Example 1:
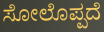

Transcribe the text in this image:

ಸೋಲೊಪ್ಪದೆ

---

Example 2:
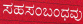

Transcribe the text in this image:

ಸಹಸಂಬಂಧವು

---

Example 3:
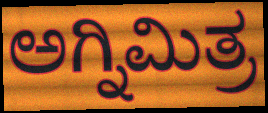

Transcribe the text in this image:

ಅಗ್ನಿಮಿತ್ರ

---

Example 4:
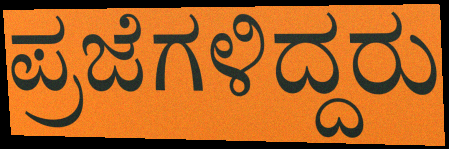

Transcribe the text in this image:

ಪ್ರಜೆಗಳಿದ್ದರು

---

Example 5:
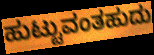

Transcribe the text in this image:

ಹುಟ್ಟುವಂತಹುದು